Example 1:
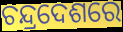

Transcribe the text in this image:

ଚନ୍ଦ୍ରଦେଶରେ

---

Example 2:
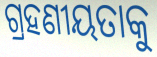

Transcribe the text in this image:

ଗ୍ରହଣୀୟତାକୁ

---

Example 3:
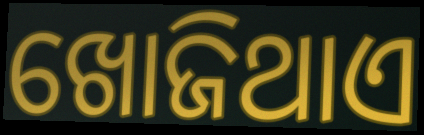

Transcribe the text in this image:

ଖୋଜିଥାଏ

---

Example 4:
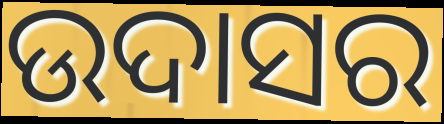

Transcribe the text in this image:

ଉଦାସର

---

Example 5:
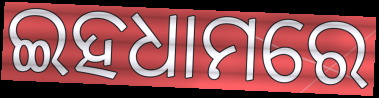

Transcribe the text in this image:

ଇହଧାମରେ